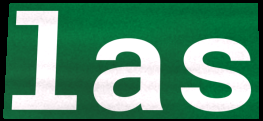
las